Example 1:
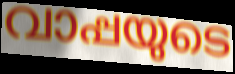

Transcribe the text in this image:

വാപ്പയുടെ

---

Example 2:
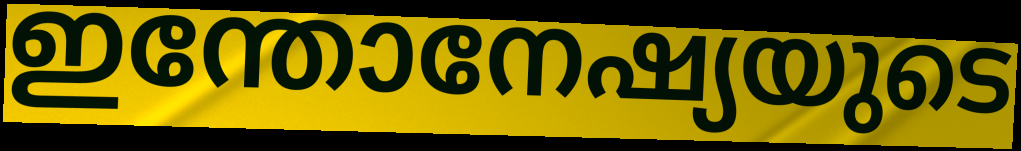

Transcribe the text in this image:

ഇന്തോനേഷ്യയുടെ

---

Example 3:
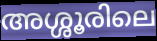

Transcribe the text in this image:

അശ്ശൂരിലെ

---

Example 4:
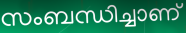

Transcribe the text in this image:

സംബന്ധിച്ചാണ്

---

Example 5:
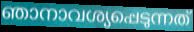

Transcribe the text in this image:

ഞാനാവശ്യപ്പെടുന്നത്